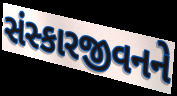
સંસ્કારજીવનને